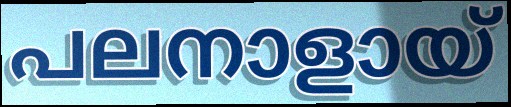
പലനാളായ്